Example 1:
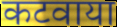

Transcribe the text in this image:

कटवाया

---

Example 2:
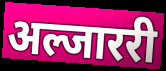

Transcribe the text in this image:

अल्जाररी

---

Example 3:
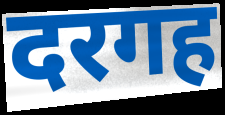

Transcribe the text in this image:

दरगह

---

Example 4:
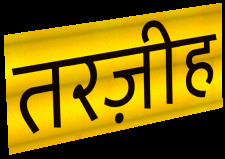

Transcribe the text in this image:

तरज़ीह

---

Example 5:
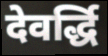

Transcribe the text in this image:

देवर्द्धि